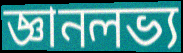
জ্ঞানলভ্য